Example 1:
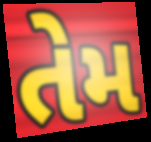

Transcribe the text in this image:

તેમ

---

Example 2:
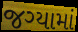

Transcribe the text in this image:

જગ્યામાં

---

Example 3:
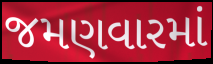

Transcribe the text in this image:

જમણવારમાં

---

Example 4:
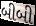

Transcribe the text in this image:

બીબી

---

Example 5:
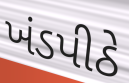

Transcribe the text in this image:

ખંડપીઠે